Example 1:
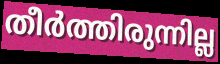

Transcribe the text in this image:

തീർത്തിരുന്നില്ല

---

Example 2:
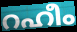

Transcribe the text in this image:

റഹീം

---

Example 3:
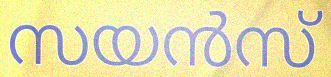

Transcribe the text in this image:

സയൻസ്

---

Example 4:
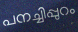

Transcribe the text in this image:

പനച്ചിപ്പുറം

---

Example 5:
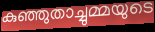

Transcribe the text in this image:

കുഞ്ഞുതാച്ചുമ്മയുടെ